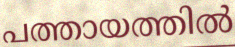
പത്തായത്തിൽ